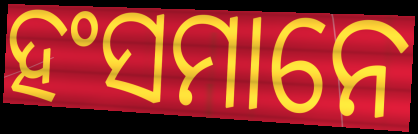
ହଂସମାନେ